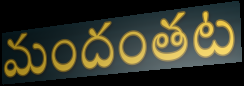
మందంతట